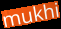
mukhi